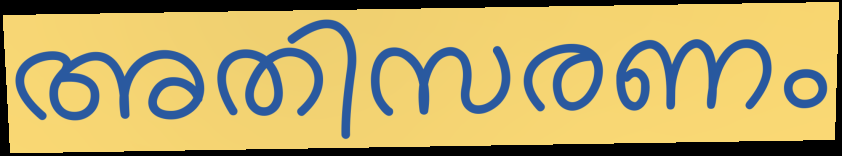
അതിസരണം